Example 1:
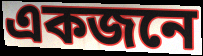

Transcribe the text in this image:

একজনে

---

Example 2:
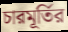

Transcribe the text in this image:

চারমূর্তির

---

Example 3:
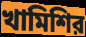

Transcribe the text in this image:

খামিশির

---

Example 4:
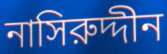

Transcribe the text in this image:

নাসিরুদ্দীন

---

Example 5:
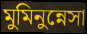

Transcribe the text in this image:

মুমিনুন্নেসা